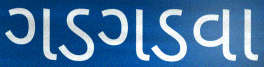
ગડગડવા